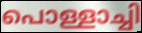
പൊള്ളാച്ചി